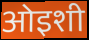
ओइशी